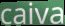
caiva